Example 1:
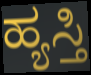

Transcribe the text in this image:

ಹ್ಯಸ್ತಿ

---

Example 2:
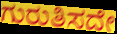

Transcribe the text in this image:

ಗುರುತಿಸದೇ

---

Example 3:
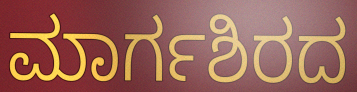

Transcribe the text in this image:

ಮಾರ್ಗಶಿರದ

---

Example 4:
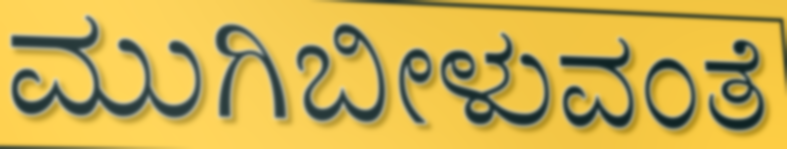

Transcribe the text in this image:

ಮುಗಿಬೀಳುವಂತೆ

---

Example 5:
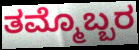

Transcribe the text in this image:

ತಮ್ಮೊಬ್ಬರ